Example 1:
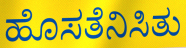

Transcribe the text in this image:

ಹೊಸತೆನಿಸಿತು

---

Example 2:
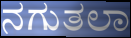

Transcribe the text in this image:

ನಗುತಲಾ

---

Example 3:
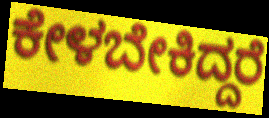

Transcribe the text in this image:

ಕೇಳಬೇಕಿದ್ದರೆ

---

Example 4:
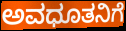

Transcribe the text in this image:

ಅವಧೂತನಿಗೆ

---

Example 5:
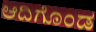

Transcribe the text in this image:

ಆದಿಗೊಂಡ